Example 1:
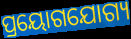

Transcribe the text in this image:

ପ୍ରୟୋଗଯୋଗ୍ୟ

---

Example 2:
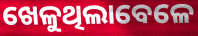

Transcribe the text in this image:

ଖେଳୁଥିଲାବେଳେ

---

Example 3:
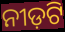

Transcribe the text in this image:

ନୀଡ଼ଟି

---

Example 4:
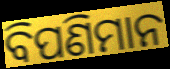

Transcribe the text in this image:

ବିପଣିମାନ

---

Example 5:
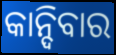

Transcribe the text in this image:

କାନ୍ଦିବାର